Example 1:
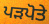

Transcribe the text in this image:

ਪੜਪੋਤੇ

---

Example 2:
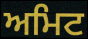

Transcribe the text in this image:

ਅਮਿਟ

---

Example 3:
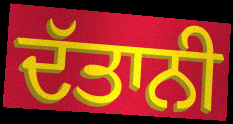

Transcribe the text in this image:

ਦੱਤਾਨੀ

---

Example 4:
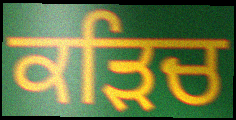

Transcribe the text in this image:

ਕੜਿਚ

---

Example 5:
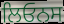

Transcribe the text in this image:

ਲਿਓਨਸ